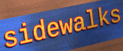
sidewalks